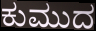
ಕುಮುದ